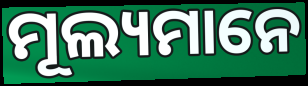
ମୂଲ୍ୟମାନେ